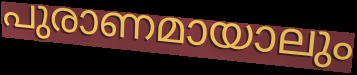
പുരാണമായാലും